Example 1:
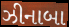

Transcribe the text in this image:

ઝીનાબા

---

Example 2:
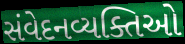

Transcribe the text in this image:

સંવેદનવ્યક્તિઓ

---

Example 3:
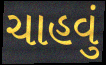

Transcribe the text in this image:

ચાહવું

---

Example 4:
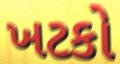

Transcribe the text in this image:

ખટકો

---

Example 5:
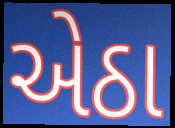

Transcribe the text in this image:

એઠા